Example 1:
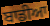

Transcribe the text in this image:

ਬਾਡੀਆ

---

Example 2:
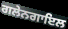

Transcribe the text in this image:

ਗਲੇਨਗਾਇਲ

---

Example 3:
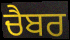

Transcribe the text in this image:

ਚੈਬਰ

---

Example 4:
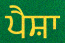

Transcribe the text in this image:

ਪੈਸ਼ਾ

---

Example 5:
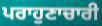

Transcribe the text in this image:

ਪਰਾਹੁਣਾਚਾਰੀ